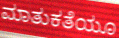
ಮಾತುಕತೆಯೂ